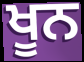
ਖੂਨ